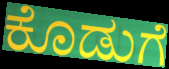
ಕೊಡುಗೆ